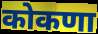
कोकणा